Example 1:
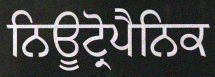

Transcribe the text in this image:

ਨਿਊਟ੍ਰੋਪੈਨਿਕ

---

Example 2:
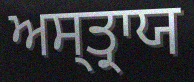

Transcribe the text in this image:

ਅਸ੍ਤ੍ਰਾਯ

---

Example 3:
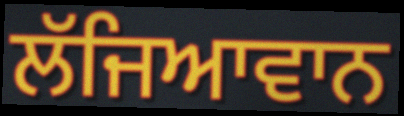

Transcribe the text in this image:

ਲੱਜਿਆਵਾਨ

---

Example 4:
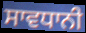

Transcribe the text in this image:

ਸਾਵਧਾਨੀ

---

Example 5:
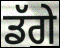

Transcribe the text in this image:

ਡੱਗੇ